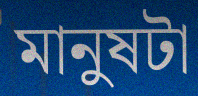
মানুষটা